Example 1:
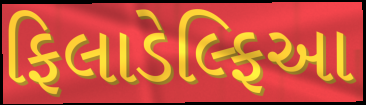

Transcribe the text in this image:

ફિલાડેલ્ફિઆ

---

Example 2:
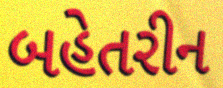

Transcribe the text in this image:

બહેતરીન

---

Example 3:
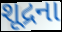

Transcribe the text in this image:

શૂદ્રના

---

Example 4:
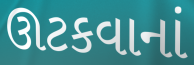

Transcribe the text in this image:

ઊટકવાનાં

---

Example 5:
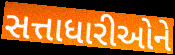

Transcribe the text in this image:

સત્તાધારીઓને